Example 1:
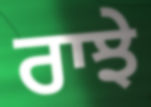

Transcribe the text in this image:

ਰਾਝੇ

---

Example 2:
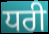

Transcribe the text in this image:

ਧਰੀ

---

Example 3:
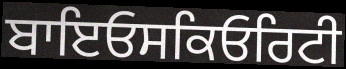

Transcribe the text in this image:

ਬਾਇਓਸਕਿਓਰਿਟੀ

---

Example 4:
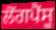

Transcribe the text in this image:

ਲੋਂਗਪੈਂਸੂ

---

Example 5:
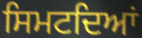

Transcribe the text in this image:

ਸਿਮਟਦਿਆਂ